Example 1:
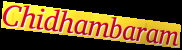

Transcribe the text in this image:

Chidhambaram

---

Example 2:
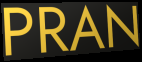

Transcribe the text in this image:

PRAN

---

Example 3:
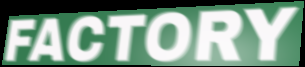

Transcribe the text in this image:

FACTORY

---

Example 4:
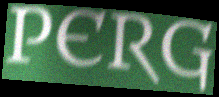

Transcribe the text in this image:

PERG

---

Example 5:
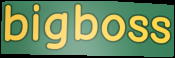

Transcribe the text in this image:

bigboss